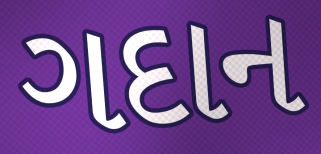
ગદાન